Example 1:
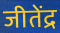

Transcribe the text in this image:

जीतेंद्र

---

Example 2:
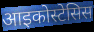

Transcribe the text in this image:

आइकोस्टेसिस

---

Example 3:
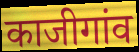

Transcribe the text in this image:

काजीगांव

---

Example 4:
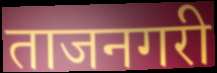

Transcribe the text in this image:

ताजनगरी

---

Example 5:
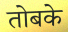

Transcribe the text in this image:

तोबके